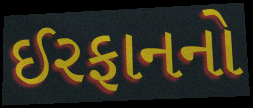
ઈરફાનનો